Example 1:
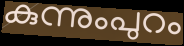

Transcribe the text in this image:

കുന്നുംപുറം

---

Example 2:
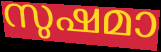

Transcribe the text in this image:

സുഷമാ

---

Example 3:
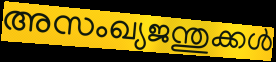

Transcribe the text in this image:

അസംഖ്യജന്തുക്കൾ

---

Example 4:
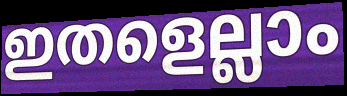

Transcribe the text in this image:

ഇതളെല്ലാം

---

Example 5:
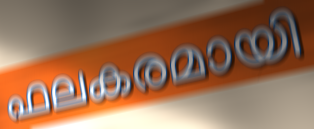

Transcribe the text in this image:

ഫലകരമായി